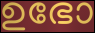
ഉഭോ